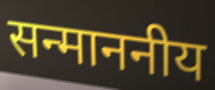
सन्माननीय